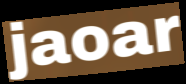
jaoar